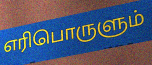
எரிபொருளும்